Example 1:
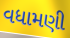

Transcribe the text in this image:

વધામણી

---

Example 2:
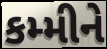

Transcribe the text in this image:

કમ્મીને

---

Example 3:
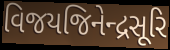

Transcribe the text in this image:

વિજયજિનેન્દ્રસૂરિ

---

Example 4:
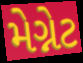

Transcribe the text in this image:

મેગ્નેટ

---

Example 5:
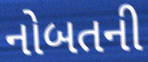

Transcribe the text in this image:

નોબતની